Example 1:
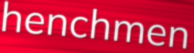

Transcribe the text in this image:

henchmen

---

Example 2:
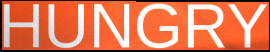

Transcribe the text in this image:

HUNGRY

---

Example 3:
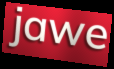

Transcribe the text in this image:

jawe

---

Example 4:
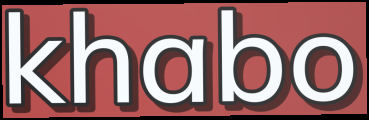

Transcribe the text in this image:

khabo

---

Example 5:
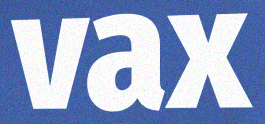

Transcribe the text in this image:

vax